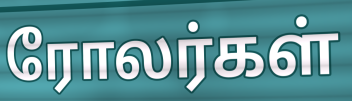
ரோலர்கள்